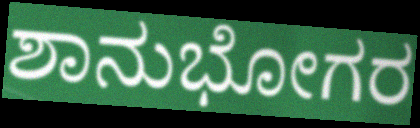
ಶಾನುಭೋಗರ